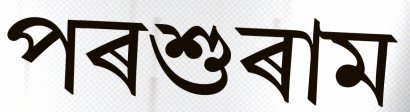
পৰশুৰাম